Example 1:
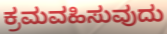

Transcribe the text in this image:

ಕ್ರಮವಹಿಸುವುದು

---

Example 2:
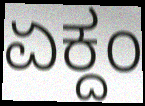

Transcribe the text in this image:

ಏಕ್ದಂ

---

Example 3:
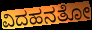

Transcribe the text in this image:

ವಿದಹನತೋ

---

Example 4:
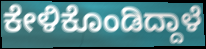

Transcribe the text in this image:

ಕೇಳಿಕೊಂಡಿದ್ದಾಳೆ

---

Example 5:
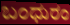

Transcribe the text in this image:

ಬಂಧುರಂ